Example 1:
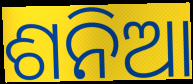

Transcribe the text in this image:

ଶନିଆ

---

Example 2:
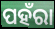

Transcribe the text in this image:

ପହଁରା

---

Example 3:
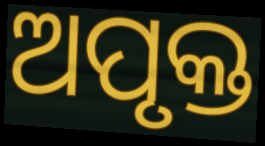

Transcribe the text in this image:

ଅପୃକ୍ତ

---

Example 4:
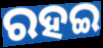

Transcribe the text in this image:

ରହଇ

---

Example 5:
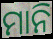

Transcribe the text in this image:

ମାନି